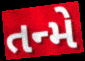
તન્મે